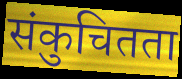
संकुचितता